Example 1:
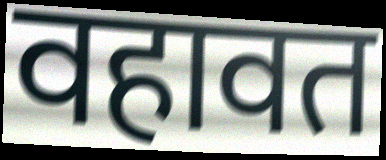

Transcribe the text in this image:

वहावत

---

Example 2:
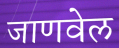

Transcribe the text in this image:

जाणवेल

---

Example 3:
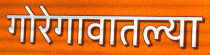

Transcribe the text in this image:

गोरेगावातल्या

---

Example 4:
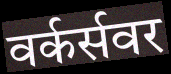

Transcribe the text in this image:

वर्कर्सवर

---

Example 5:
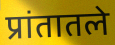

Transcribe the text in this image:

प्रांतातले